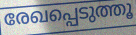
രേഖപ്പെടുത്തൂ